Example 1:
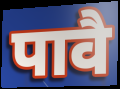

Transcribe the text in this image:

पावै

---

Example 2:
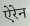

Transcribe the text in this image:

ऐरेन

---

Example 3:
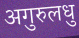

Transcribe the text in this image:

अगुरुलधु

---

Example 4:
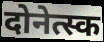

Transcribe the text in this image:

दोनेत्स्क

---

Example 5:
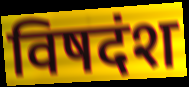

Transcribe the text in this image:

विषदंश